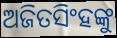
ଅଜିତସିଂହଙ୍କୁ